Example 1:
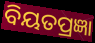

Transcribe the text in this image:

ବିୟତପ୍ରଜ୍ଞା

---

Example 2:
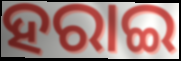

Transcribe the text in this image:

ହରାଇ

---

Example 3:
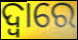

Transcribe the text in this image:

ଦ୍ବାରେ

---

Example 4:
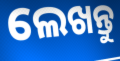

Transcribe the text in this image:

ଲେଖନ୍ତୁ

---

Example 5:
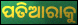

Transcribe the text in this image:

ପତିଆରାକୁ